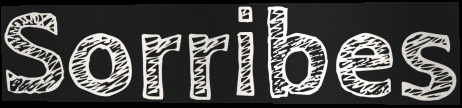
Sorribes